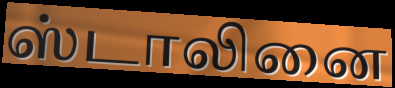
ஸ்டாலினை